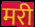
मरी